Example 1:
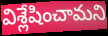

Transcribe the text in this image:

విశ్లేషించామని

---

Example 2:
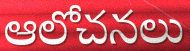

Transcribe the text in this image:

ఆలోచనలు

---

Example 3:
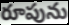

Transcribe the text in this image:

రూపును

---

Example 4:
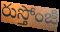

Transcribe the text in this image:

రుస్తోంజీ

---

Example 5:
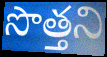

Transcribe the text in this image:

సొత్తని